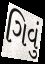
ગિવું